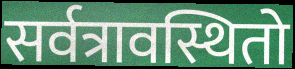
सर्वत्रावस्थितो